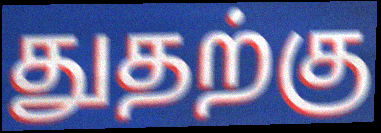
துதற்கு